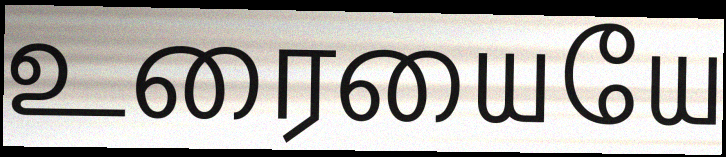
உரையையே